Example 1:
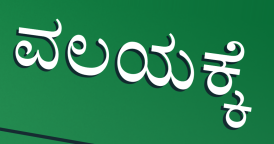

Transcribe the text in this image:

ವಲಯಕ್ಕೆ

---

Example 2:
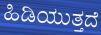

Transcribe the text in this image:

ಹಿಡಿಯುತ್ತದೆ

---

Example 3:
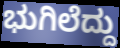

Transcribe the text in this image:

ಭುಗಿಲೆದ್ದು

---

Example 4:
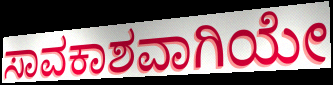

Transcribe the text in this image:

ಸಾವಕಾಶವಾಗಿಯೇ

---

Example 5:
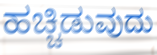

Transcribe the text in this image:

ಹಚ್ಚಿಡುವುದು